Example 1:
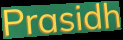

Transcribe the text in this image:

Prasidh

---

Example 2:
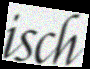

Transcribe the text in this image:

isch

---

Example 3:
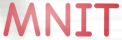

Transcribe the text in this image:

MNIT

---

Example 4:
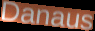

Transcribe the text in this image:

Danaus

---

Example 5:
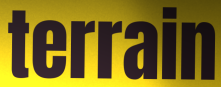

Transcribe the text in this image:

terrain